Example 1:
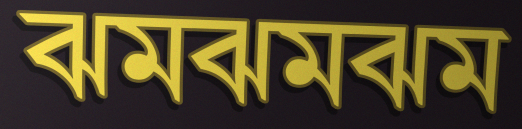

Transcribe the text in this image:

ঝমঝমঝম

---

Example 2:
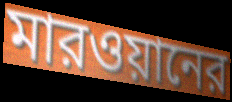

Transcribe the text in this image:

মারওয়ানের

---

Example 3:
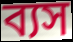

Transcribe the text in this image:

ব্যস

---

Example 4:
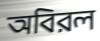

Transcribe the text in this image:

অবিরল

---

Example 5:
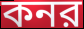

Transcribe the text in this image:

কনর